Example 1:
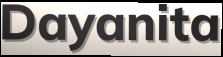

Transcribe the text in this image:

Dayanita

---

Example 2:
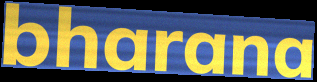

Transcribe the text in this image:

bharana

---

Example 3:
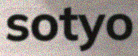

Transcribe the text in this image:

sotyo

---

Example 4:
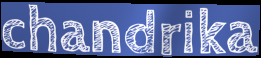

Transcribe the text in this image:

chandrika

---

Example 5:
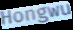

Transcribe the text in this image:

Hongwu